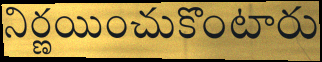
నిర్ణయించుకొంటారు